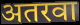
अतरवा